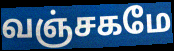
வஞ்சகமே